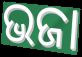
ଭଜା